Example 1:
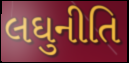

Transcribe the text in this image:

લઘુનીતિ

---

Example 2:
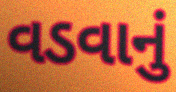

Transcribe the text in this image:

વડવાનું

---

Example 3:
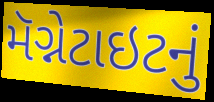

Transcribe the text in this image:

મૅગ્નેટાઇટનું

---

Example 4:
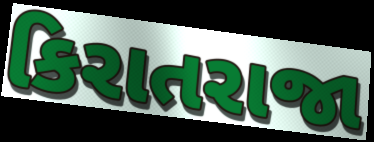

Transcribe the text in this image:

કિરાતરાજા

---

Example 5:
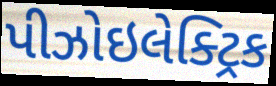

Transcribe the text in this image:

પીઝોઇલેક્ટ્રિક